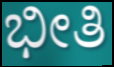
ಭೀತಿ